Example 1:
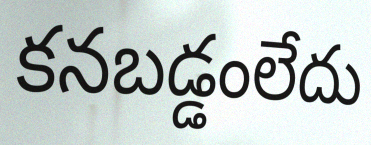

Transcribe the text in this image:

కనబడ్డంలేదు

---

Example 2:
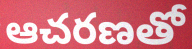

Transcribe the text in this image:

ఆచరణతో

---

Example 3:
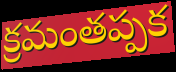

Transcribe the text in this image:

క్రమంతప్పక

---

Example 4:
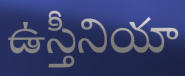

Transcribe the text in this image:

ఉస్తీనియా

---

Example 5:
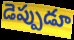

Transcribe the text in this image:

డెప్పుడూ